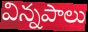
విన్నపాలు